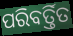
ପରିବର୍ତ୍ତିତ